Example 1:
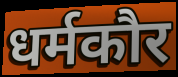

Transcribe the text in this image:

धर्मकौर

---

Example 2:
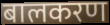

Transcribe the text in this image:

बालकरण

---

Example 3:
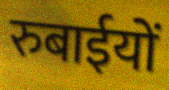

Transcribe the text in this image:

रुबाईयों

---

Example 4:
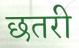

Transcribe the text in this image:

छतरी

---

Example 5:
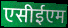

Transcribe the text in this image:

एसीईएम